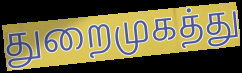
துறைமுகத்து